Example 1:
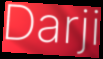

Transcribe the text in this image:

Darji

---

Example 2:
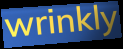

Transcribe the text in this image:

wrinkly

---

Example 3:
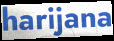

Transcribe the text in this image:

harijana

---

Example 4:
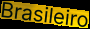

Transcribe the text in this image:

Brasileiro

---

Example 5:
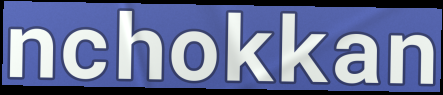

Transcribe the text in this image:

nchokkan